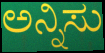
ಅನ್ನಿಸು